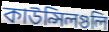
কাউন্সিলগুলি